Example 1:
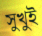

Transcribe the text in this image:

সুখুই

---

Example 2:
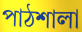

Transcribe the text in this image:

পাঠশালা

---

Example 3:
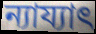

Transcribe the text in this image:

ন্যায্যাৎ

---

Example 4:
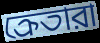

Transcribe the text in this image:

ক্রেতারা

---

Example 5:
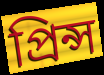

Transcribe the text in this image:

প্রিন্স